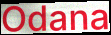
Odana